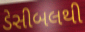
ડેસીબલથી